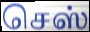
செஸ்